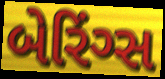
બેરિંગ્સ